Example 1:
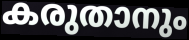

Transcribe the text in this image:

കരുതാനും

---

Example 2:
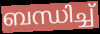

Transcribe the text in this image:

ബന്ധിച്ച്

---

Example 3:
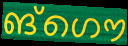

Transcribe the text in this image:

ങ്ഗൌ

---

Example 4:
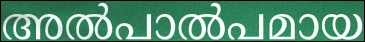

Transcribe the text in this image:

അൽപാൽപമായ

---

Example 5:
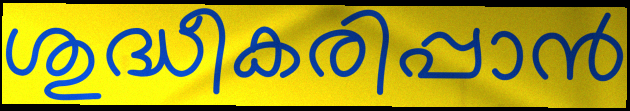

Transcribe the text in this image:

ശുദ്ധീകരിപ്പാൻ